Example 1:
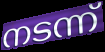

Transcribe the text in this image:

നടന്ന്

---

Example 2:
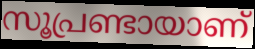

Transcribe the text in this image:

സൂപ്രണ്ടായാണ്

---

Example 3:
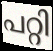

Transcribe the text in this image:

പറ്റി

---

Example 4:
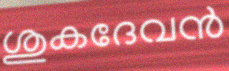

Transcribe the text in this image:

ശുകദേവൻ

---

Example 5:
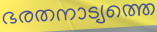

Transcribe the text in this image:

ഭരതനാട്യത്തെ